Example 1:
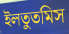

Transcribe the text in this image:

ইলতুতমিস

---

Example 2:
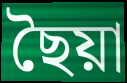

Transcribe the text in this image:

ছৈয়া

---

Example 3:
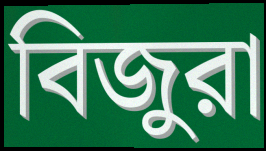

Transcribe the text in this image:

বিজুরা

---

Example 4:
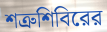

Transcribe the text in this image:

শত্রুশিবিরের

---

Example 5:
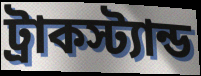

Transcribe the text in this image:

ট্রাকস্ট্যান্ড